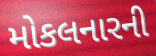
મોકલનારની